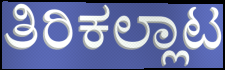
ತಿರಿಕಲ್ಲಾಟ